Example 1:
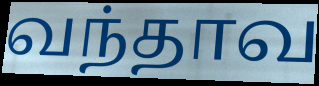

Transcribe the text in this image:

வந்தாவ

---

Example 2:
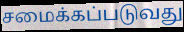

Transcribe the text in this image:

சமைக்கப்படுவது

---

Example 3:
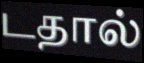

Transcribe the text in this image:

டதால்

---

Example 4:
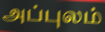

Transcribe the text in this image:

அப்புலம்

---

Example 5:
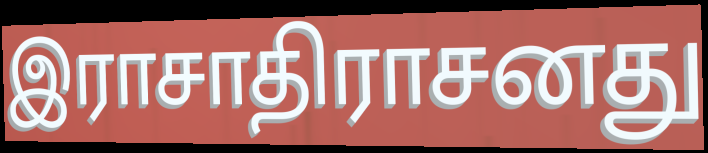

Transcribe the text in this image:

இராசாதிராசனது